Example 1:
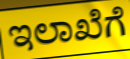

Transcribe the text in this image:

ಇಲಾಖೆಗೆ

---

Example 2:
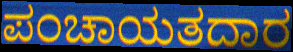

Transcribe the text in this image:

ಪಂಚಾಯತದಾರ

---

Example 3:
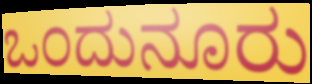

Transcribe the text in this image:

ಒಂದುನೂರು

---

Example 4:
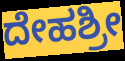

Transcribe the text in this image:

ದೇಹಶ್ರೀ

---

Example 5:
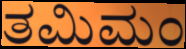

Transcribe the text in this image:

ತಮಿಮಂ